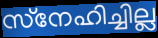
സ്‌നേഹിച്ചില്ല